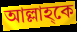
আল্লাহ্কে